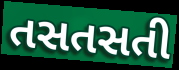
તસતસતી